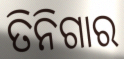
ତିନିଗାର